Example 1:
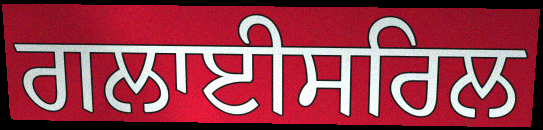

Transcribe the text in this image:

ਗਲਾਈਸਰਿਲ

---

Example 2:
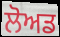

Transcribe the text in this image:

ਲੋਅਡ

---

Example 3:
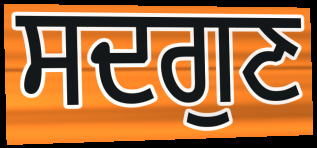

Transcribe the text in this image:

ਸਦਗੁਣ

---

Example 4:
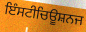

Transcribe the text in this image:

ਇੰਸਟੀਚਿਊਸ਼ਨਜ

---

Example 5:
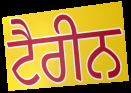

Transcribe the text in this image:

ਟੈਰੀਨ